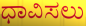
ಧಾವಿಸಲು